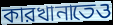
কারখানাতেও